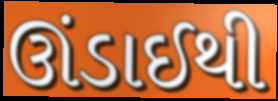
ઊંડાઈથી